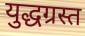
युद्धग्रस्त